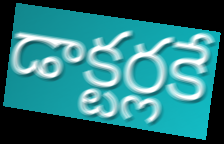
డాక్టర్లకే